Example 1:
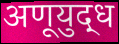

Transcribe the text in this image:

अणूयुद्ध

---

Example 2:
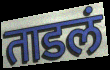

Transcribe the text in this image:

ताडलं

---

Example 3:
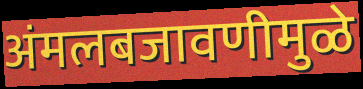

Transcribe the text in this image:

अंमलबजावणीमुळे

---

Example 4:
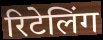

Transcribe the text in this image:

रिटेलिंग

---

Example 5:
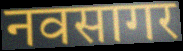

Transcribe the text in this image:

नवसागर